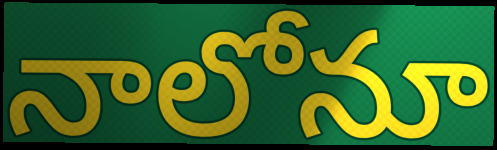
నాలోనూ